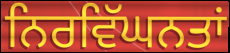
ਨਿਰਵਿੱਘਨਤਾਂ